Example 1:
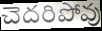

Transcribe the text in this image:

చెదరిపోవు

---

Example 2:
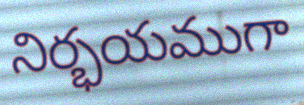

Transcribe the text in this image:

నిర్భయముగా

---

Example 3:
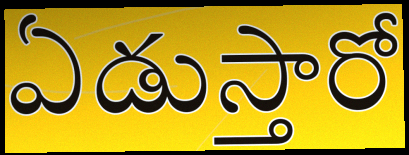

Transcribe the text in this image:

ఏడుస్తారో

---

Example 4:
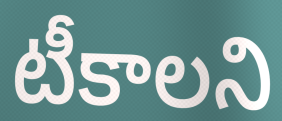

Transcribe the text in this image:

టీకాలని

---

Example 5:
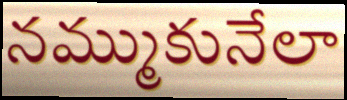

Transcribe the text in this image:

నమ్ముకునేలా